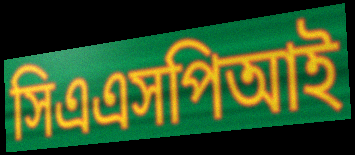
সিএএসপিআই